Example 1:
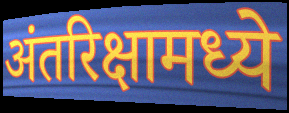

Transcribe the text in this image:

अंतरिक्षामध्ये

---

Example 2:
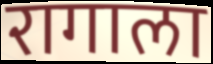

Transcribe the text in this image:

रागाला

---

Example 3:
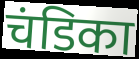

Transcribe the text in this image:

चंडिका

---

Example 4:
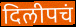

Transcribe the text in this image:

दिलीपचं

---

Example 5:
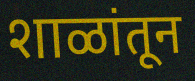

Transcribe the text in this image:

शाळांतून